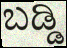
ಬಡ್ಡಿ